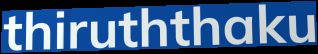
thiruththaku